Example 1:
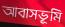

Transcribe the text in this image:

আবাসভূমি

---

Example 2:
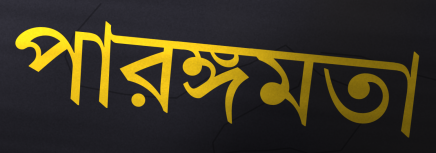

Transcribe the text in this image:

পারঙ্গমতা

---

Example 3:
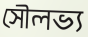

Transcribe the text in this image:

সৌলভ্য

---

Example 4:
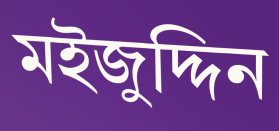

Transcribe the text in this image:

মইজুদ্দিন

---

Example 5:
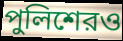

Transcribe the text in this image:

পুলিশেরও